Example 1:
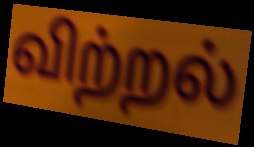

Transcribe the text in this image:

விற்றல்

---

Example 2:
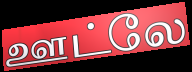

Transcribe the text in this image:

ஊட்லே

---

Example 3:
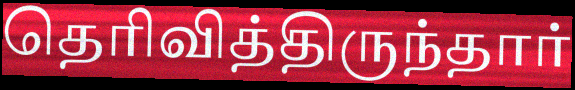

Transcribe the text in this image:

தெரிவித்திருந்தார்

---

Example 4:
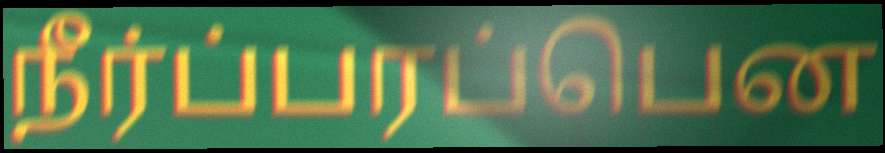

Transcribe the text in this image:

நீர்ப்பரப்பென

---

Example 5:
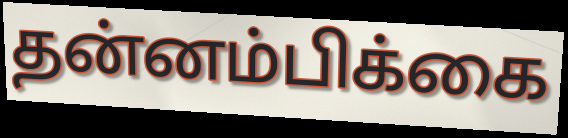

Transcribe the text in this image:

தன்னம்பிக்கை